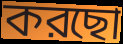
করছো